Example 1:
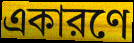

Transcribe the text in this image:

একারণে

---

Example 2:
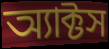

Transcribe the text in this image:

অ্যাক্টস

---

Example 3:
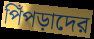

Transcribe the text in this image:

পিঁপড়াদের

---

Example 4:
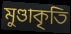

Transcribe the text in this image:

মুণ্ডাকৃতি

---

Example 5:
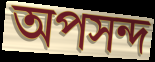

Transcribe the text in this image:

অপসন্দ